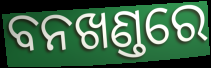
ବନଖଣ୍ଡରେ